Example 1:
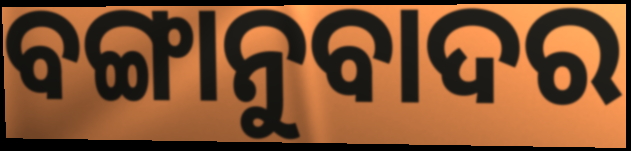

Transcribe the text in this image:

ବଙ୍ଗାନୁବାଦର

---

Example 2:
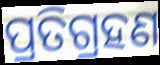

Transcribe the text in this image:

ପ୍ରତିଗ୍ରହଣ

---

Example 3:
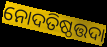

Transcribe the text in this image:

ନୋଦତିଷ୍ଠତ୍ତଦା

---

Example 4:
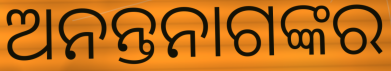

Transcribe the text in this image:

ଅନନ୍ତନାଗଙ୍କର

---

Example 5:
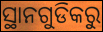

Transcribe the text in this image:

ସ୍ଥାନଗୁଡିକରୁ